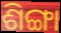
ଶିଙ୍ଗା